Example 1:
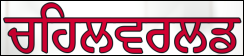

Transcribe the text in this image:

ਚਹਿਲਵਰਲਡ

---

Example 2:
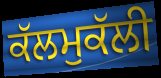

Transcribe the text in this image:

ਕੱਲਮੁਕੱਲੀ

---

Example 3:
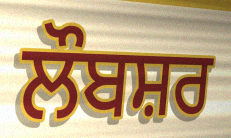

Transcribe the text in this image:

ਲੌਬਸ਼ਰ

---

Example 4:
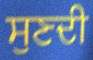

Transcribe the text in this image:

ਸੁਣਦੀ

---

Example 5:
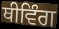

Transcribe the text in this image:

ਥੀਵਿੰਗ